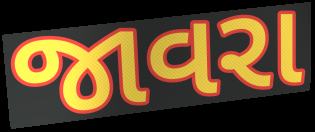
જાવરા